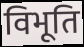
विभूति